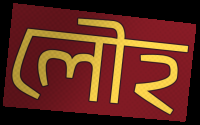
লৌহ